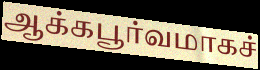
ஆக்கபூர்வமாகச்